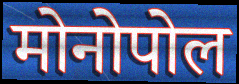
मोनोपोल